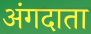
अंगदाता